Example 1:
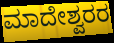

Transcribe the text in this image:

ಮಾದೇಶ್ವರರ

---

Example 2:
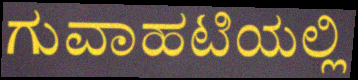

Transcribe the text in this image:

ಗುವಾಹಟಿಯಲ್ಲಿ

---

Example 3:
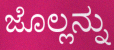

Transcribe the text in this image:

ಜೊಲ್ಲನ್ನು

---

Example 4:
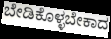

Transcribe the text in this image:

ಬೇಡಿಕೊಳ್ಳಬೇಕಾದ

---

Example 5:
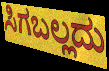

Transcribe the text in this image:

ಸಿಗಬಲ್ಲದು